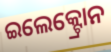
ଇଲେକ୍ଟ୍ରୋନ